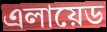
এলায়েড